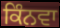
ਕਿੰਨਵਾ